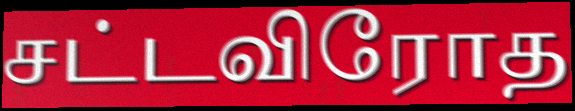
சட்டவிரோத